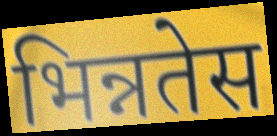
भिन्नतेस